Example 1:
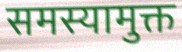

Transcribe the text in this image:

समस्यामुक्त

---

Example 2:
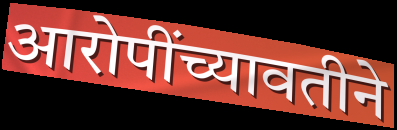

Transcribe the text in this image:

आरोपींच्यावतीने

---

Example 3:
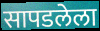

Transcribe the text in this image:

सापडलेला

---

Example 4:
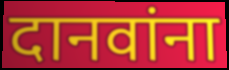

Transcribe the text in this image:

दानवांना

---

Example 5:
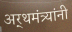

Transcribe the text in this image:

अर्थमंत्र्यांनी